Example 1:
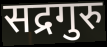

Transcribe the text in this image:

सद्रगुरु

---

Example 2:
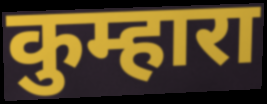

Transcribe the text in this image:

कुम्हारा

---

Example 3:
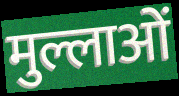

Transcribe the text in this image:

मुल्लाओं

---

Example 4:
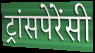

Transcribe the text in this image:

ट्रांसपेरेंसी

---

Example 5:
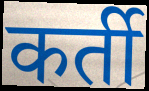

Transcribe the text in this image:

कर्ती